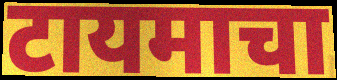
टायमाचा